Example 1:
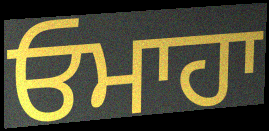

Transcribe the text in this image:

ਓਮਾਹਾ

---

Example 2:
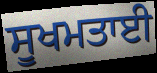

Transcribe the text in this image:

ਸੂਖਮਤਾਈ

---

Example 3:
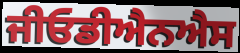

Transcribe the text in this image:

ਜੀਓਡੀਐਨਐਸ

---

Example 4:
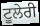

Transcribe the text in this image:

ਟੂਲੇਰੀ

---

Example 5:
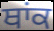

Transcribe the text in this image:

ਥਾਂਕ